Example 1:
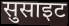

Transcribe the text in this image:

सुसाइट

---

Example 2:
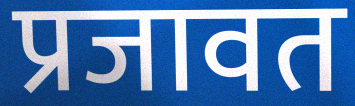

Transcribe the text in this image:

प्रजावत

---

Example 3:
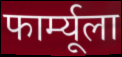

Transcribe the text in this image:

फार्म्यूला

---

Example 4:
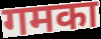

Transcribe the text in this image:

गमका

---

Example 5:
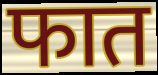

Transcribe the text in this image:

फात